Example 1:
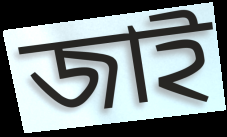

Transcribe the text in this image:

জাই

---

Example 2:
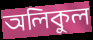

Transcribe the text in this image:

অলিকুল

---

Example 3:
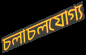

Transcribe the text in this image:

চলাচলযোগ্য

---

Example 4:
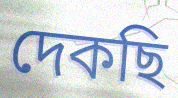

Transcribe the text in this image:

দেকছি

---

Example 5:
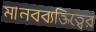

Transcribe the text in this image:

মানবব্যক্তিত্বের